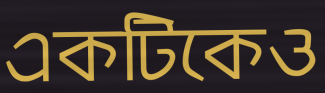
একটিকেও